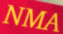
NMA